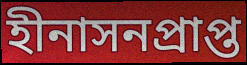
হীনাসনপ্রাপ্ত